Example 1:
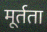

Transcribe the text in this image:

मूर्तता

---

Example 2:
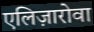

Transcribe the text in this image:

एलिज़ारोवा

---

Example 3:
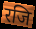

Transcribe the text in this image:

रजि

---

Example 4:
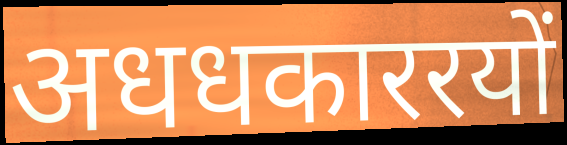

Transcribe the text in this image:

अधधकाररयों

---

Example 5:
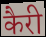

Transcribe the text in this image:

कैरी